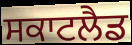
ਸਕਾਟਲੈਡ